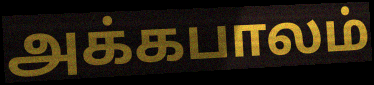
அக்கபாலம்